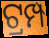
ଟ୍ରମ୍ପ